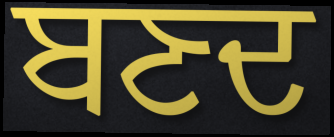
ਬਣਦ